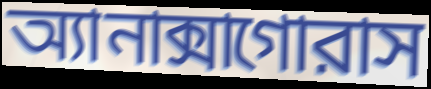
অ্যানাক্সাগোরাস